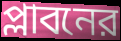
প্লাবনের